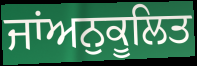
ਜਾਂਅਨੁਕੂਲਿਤ